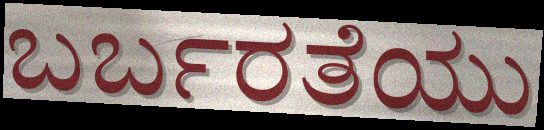
ಬರ್ಬರತೆಯು